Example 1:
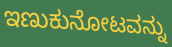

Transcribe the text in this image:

ಇಣುಕುನೋಟವನ್ನು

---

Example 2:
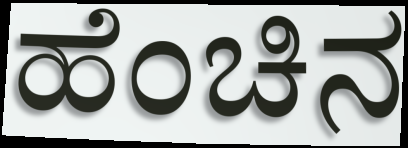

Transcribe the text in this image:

ಹೆಂಚಿನ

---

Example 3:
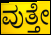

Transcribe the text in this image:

ವುತ್ತೇ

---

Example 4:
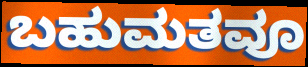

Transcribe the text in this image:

ಬಹುಮತವೂ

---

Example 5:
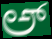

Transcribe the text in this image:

ಅ್